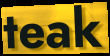
teak